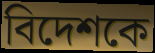
বিদেশকে